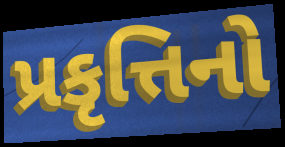
પ્રકૃત્તિનો